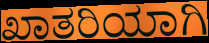
ಖಾತರಿಯಾಗಿ